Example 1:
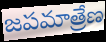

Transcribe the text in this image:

జపమాత్రేణ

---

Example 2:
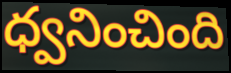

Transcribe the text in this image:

ధ్వనించింది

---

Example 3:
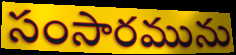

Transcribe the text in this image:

సంసారమును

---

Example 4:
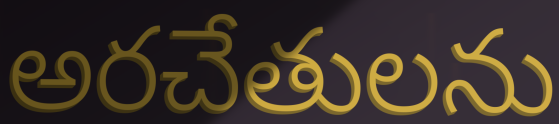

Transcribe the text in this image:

అరచేతులను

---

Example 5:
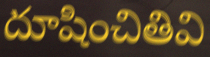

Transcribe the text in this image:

దూషించితివి